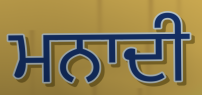
ਮਨਾਦੀ